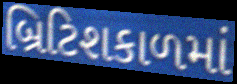
બ્રિટિશકાળમાં